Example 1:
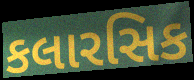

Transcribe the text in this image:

કલારસિક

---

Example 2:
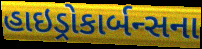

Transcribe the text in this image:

હાઇડ્રોકાર્બન્સના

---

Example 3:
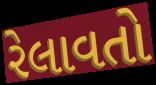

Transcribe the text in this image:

રેલાવતો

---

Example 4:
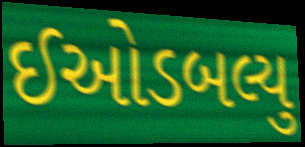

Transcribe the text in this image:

ઈઓડબલ્યુ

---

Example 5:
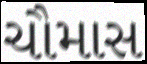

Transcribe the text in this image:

ચૌમાસ